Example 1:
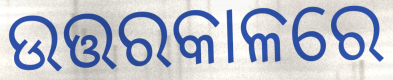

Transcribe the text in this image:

ଉତ୍ତରକାଳରେ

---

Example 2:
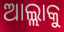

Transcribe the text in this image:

ଆଲ୍ଲାକୁ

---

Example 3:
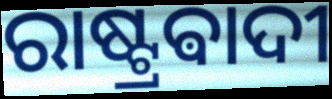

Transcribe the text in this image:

ରାଷ୍ଟ୍ରଵାଦୀ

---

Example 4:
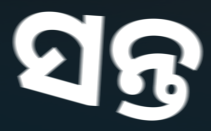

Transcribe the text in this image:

ସନ୍ତ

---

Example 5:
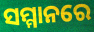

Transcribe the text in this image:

ସମ୍ମାନରେ